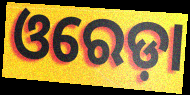
ଓରେଡ଼ା